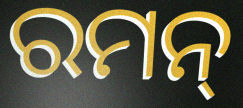
ରମନ୍